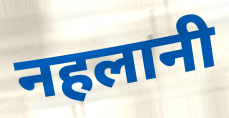
नहलानी